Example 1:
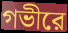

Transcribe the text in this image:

গভীরে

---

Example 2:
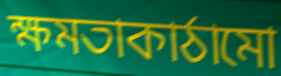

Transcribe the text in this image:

ক্ষমতাকাঠামো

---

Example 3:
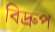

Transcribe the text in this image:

বিদ্রুপ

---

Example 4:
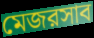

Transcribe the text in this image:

মেজরসাব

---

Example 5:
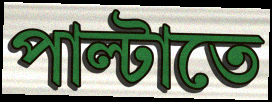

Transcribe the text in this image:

পাল্টাতে